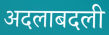
अदलाबदली